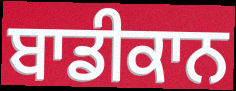
ਬਾਡੀਕਾਨ